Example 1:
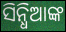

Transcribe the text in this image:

ସିନ୍ଧିଆଙ୍କ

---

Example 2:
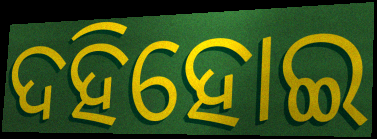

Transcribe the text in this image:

ଦହିହୋଇ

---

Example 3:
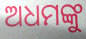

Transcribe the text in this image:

ଅଧମଙ୍କୁ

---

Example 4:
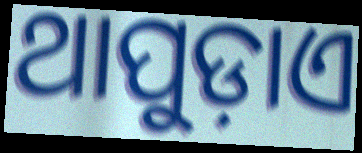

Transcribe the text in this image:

ଥାପୁଡ଼ାଏ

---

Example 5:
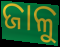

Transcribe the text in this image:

ଜାଳୁ